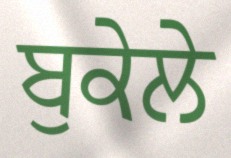
ਬੁਕੇਲੇ